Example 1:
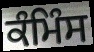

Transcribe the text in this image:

ਕੰਮਿੰਸ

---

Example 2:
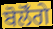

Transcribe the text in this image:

ਬੋਲੋਁਗੇ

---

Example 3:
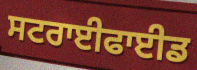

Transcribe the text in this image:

ਸਟਰਾਈਫਾਈਡ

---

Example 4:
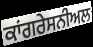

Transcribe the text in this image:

ਕਾਂਗਰੇਸਨੀਅਲ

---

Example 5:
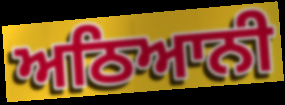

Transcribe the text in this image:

ਅਠਿਆਨੀ